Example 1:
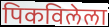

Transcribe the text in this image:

पिकविलेला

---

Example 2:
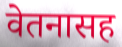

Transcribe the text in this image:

वेतनासह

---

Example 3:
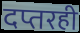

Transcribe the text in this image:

दप्तरही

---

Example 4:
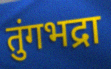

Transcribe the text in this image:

तुंगभद्रा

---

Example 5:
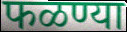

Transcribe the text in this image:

फळण्या